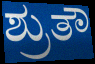
ಶ್ರುತೌ